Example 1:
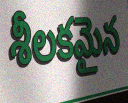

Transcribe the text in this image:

శీలకమైన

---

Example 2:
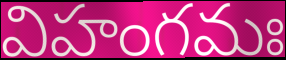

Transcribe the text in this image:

విహంగమః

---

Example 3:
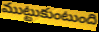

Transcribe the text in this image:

ముట్టుకుంటుంది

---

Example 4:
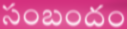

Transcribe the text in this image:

సంబందం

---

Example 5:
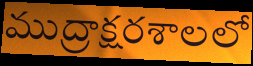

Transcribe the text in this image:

ముద్రాక్షరశాలలో